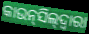
କାଉନ୍‌ସିଲ୍‌ଦ୍ବାରା